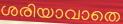
ശരിയാവാതെ